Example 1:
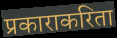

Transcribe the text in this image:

प्रकाराकरिता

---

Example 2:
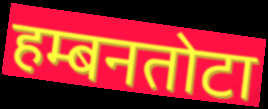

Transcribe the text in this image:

हम्बनतोटा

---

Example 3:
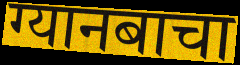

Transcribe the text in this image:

ग्यानबाचा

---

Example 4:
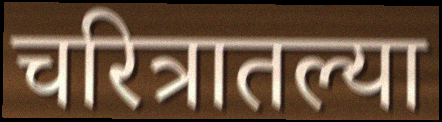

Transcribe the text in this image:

चरित्रातल्या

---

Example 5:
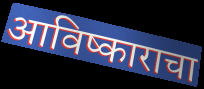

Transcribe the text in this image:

आविष्काराचा